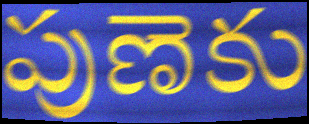
పుణెకు